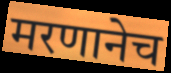
मरणानेच